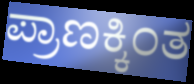
ಪ್ರಾಣಕ್ಕಿಂತ